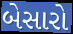
બેસારો